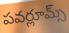
పవర్లూమ్స్